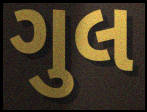
ગુલ